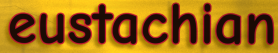
eustachian